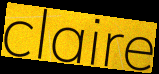
claire